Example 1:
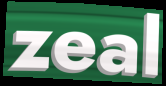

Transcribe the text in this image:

zeal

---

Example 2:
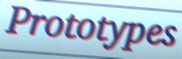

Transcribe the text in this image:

Prototypes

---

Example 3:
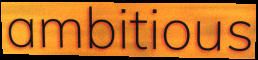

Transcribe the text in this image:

ambitious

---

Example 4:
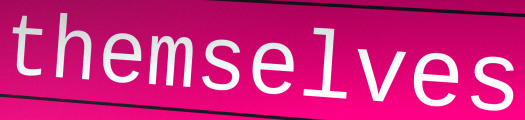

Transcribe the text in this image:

themselves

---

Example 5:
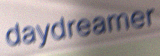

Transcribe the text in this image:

daydreamer